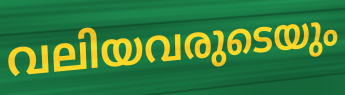
വലിയവരുടെയും